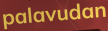
palavudan